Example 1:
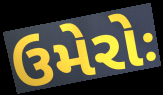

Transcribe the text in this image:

ઉમેરોઃ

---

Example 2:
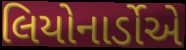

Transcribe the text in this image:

લિયોનાર્ડોએ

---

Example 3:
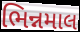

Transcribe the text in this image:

ભિન્નમાલ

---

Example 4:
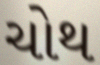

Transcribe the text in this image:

ચોથ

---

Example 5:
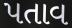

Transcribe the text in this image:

પતાવ